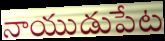
నాయుడుపేట